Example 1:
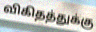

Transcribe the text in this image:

விகிதத்துக்கு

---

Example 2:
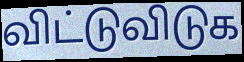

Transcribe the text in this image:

விட்டுவிடுக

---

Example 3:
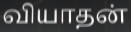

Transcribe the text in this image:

வியாதன்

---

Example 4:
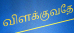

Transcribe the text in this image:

விளக்குவதே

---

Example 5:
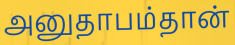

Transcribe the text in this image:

அனுதாபம்தான்